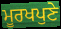
ਮੂਰਖਪੁਣੇ